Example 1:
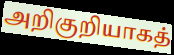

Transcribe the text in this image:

அறிகுறியாகத்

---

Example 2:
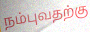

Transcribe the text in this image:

நம்புவதற்கு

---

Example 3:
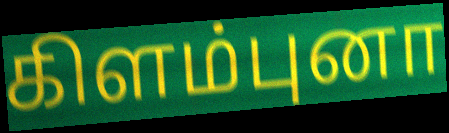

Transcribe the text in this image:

கிளம்புனா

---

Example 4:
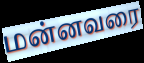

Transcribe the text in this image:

மன்னவரை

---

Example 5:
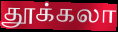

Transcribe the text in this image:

தூக்கலா